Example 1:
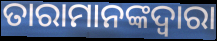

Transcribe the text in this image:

ତାରାମାନଙ୍କଦ୍ୱାରା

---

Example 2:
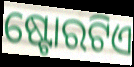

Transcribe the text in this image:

ଷ୍ଟୋରଟିଏ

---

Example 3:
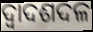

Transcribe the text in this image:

ଦ୍ୱାଦଶଦଳ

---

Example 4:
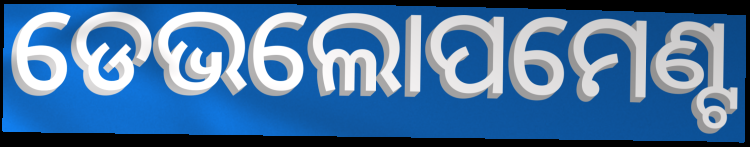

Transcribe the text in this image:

ଡେଭଲୋପମେଣ୍ଟ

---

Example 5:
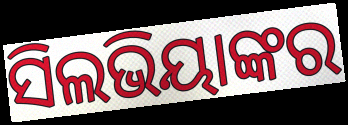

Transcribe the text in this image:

ସିଲଭିୟାଙ୍କର